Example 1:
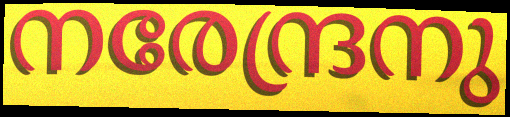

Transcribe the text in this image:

നരേന്ദ്രനു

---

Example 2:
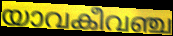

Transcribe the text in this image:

യാവകീവഞ്ച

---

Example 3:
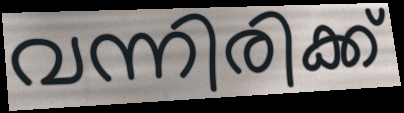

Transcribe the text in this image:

വന്നിരിക്ക്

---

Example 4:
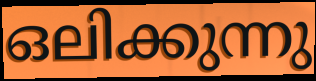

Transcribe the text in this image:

ഒലിക്കുന്നു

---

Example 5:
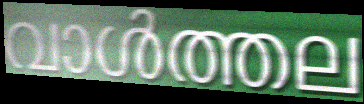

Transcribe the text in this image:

വാൾത്തല